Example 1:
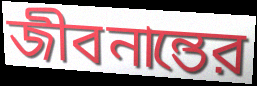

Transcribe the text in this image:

জীবনান্তের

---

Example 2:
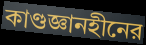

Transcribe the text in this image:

কাণ্ডজ্ঞানহীনের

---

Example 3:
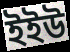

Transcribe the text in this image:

ইইউ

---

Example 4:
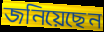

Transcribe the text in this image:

জনিয়েছেন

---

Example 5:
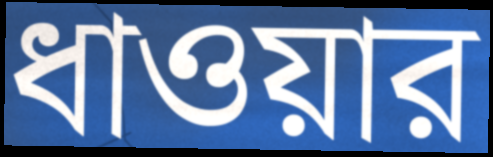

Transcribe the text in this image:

ধাওয়ার